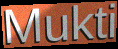
Mukti